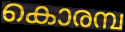
കൊരമ്പ